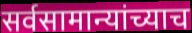
सर्वसामान्यांच्याच